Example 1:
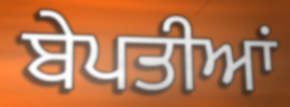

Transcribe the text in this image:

ਬੇਪਤੀਆਂ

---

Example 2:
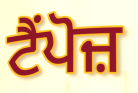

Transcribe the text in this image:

ਟੈਂਪੋਜ਼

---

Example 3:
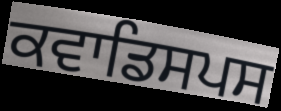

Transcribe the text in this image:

ਕਵਾਡਿਸਪਸ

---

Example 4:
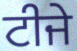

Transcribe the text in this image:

ਟੀਜੇ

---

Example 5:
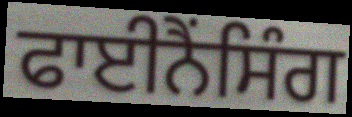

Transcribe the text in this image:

ਫਾਈਨੈਂਸਿੰਗ